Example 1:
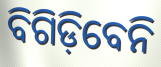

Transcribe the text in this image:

ବିଗିଡ଼ିବେନି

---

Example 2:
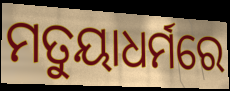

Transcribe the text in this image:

ମତୁୟାଧର୍ମରେ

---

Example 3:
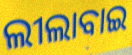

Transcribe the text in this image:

ଲୀଲାବାଇ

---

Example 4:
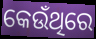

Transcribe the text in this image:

କେଉଁଥିରେ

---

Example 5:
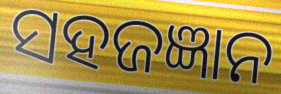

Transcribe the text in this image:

ସହଜଜ୍ଞାନ